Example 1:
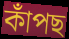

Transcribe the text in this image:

কাঁপছ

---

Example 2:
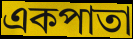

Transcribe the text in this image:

একপাতা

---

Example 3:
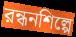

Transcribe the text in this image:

রন্ধনশিল্পে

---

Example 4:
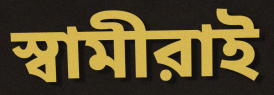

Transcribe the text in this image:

স্বামীরাই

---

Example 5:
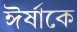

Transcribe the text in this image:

ঈর্ষাকে